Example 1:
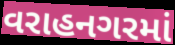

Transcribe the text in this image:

વરાહનગરમાં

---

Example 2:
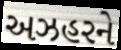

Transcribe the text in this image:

અઝહરને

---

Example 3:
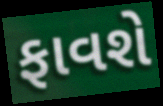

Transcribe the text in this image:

ફાવશે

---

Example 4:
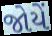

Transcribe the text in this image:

જોયેં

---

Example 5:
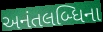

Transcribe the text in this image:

અનંતલબ્ધિના